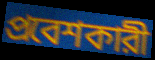
প্রবেশকারী